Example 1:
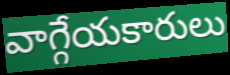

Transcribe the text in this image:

వాగ్గేయకారులు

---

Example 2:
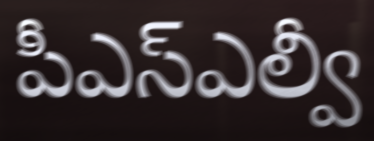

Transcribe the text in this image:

పీఎస్ఎల్వీ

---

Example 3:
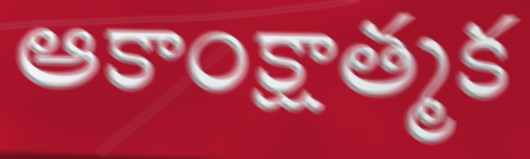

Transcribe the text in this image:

ఆకాంక్షాత్మక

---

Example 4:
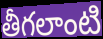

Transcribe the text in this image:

తీగలాంటి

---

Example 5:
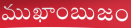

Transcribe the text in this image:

ముఖాంబుజం